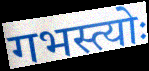
गभस्त्योः